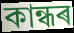
কান্ধৰ